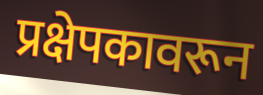
प्रक्षेपकावरून